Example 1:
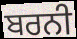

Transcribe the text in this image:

ਬਰਨੀ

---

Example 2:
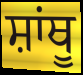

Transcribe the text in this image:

ਸ਼ਾਂਥੂ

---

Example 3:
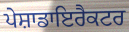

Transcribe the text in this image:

ਪੇਸ਼ਾਡਾਇਰੈਕਟਰ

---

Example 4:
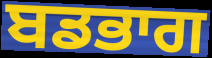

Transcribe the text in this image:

ਬਡਭਾਗ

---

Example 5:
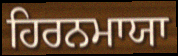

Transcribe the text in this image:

ਹਿਰਨਮਾਯਾ